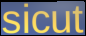
sicut